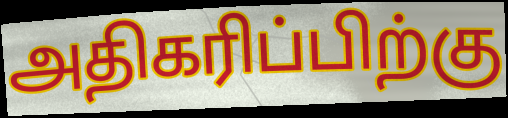
அதிகரிப்பிற்கு